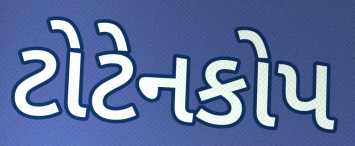
ટોટેનકોપ